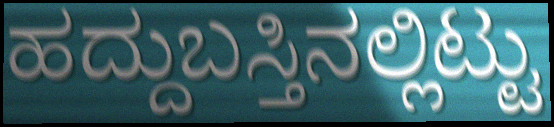
ಹದ್ದುಬಸ್ತಿನಲ್ಲಿಟ್ಟು